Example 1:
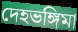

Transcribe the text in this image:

দেহভঙ্গিমা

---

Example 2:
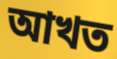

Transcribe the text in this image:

আখত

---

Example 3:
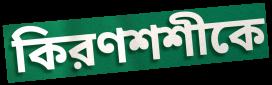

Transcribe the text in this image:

কিরণশশীকে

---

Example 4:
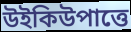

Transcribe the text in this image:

উইকিউপাত্তে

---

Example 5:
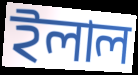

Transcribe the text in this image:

ইলাল